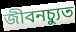
জীবনচ্যুত